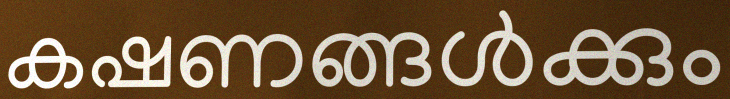
കഷണങ്ങൾക്കും